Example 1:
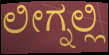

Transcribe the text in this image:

ಲೀಗ್ನಲ್ಲಿ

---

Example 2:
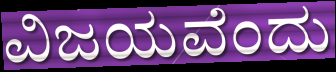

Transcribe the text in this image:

ವಿಜಯವೆಂದು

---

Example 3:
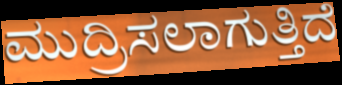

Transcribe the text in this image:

ಮುದ್ರಿಸಲಾಗುತ್ತಿದೆ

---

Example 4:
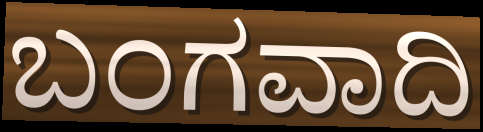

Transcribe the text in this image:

ಬಂಗವಾದಿ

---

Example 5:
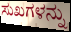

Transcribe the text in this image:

ಸುಖಗಳನ್ನು